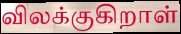
விலக்குகிறாள்